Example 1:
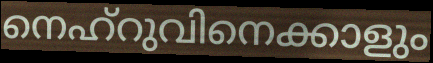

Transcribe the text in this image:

നെഹ്റുവിനെക്കാളും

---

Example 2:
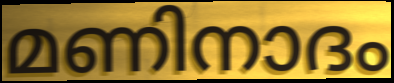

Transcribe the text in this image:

മണിനാദം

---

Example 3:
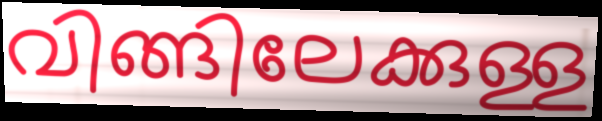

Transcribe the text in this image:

വിങ്ങിലേക്കുള്ള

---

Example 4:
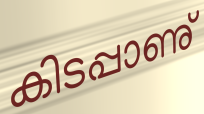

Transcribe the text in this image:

കിടപ്പാണു്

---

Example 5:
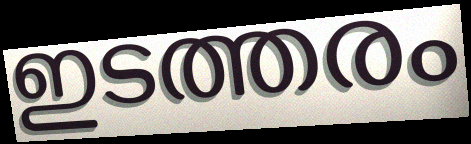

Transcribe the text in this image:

ഇടത്തരം